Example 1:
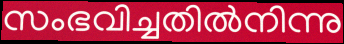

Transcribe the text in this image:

സംഭവിച്ചതിൽനിന്നു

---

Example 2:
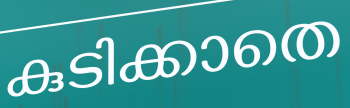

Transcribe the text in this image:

കുടിക്കാതെ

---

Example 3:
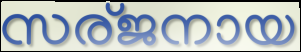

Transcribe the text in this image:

സര്ജനായ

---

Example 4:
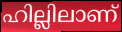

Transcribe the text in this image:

ഹില്ലിലാണ്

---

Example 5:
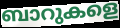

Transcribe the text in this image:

ബാറുകളെ